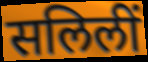
सलिलीं